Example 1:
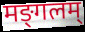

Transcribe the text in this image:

मङ्गलम्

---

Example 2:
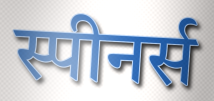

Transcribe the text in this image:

स्पीनर्स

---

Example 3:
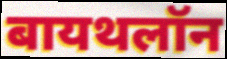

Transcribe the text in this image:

बायथलॉन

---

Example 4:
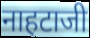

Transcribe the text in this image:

नाहटाजी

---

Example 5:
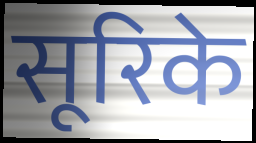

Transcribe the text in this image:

सूरिके